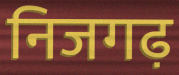
निजगढ़